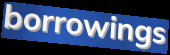
borrowings